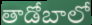
తాడోబాలో